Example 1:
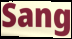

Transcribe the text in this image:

Sang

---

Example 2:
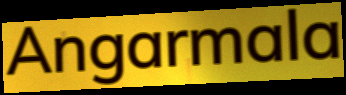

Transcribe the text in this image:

Angarmala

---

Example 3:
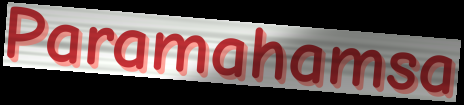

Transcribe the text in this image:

Paramahamsa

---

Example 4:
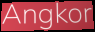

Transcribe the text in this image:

Angkor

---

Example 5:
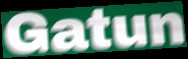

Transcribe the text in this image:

Gatun